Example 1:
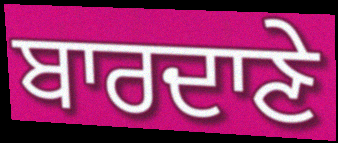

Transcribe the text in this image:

ਬਾਰਦਾਣੇ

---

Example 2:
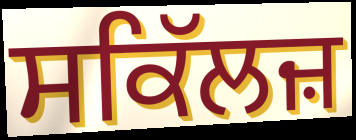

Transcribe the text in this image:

ਸਕਿੱਲਜ਼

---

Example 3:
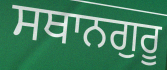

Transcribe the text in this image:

ਸਥਾਨਗੁਰੂ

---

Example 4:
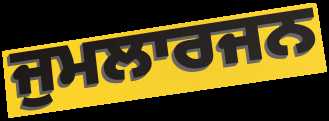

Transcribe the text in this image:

ਜੁਮਲਾਰਜਨ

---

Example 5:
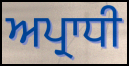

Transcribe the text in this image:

ਅਪ੍ਰਾਧੀ